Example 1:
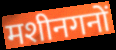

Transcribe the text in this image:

मशीनगनों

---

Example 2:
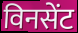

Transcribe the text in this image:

विनसेंट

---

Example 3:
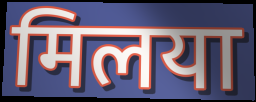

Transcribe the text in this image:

मिलया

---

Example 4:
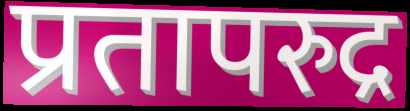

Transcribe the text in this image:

प्रतापरुद्र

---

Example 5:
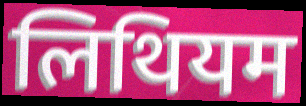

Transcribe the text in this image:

लिथियम